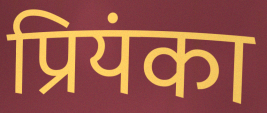
प्रियंका